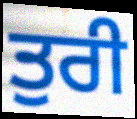
ਤੁਰੀ